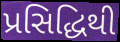
પ્રસિદ્ધિથી